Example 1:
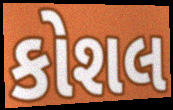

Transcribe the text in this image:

કોશલ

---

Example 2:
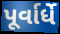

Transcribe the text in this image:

પૂર્વાર્ધે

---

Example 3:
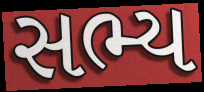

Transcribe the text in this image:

સભ્ય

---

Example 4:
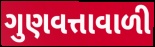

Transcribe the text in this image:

ગુણવત્તાવાળી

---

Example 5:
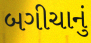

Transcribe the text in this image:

બગીચાનું